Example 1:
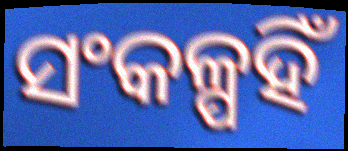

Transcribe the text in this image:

ସଂକଳ୍ପହିଁ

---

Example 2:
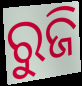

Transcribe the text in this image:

ରୁଜି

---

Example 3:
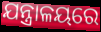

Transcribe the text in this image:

ଯନ୍ତ୍ରାଳୟରେ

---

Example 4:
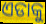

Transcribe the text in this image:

ଏଡାକୁ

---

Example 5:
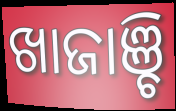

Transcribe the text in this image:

ଖାଜାଞ୍ଚି